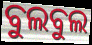
ବୁଲବୁଲ